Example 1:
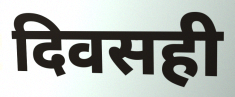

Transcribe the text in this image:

दिवसही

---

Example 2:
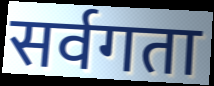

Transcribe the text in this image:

सर्वगता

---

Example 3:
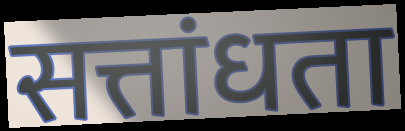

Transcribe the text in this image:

सत्तांधता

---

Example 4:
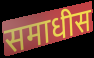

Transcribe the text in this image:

समाधीस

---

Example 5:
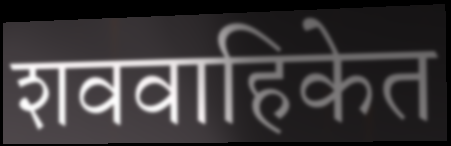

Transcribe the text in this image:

शववाहिकेत